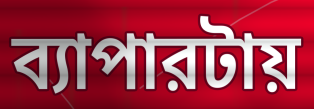
ব্যাপারটায়